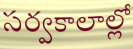
సర్వకాలాల్లో